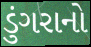
ડુંગરાનો